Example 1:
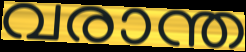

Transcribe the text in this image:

വരാന്ത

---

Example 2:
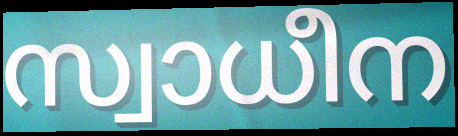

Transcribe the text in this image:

സ്വാധീന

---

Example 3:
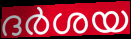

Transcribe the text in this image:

ദർശയ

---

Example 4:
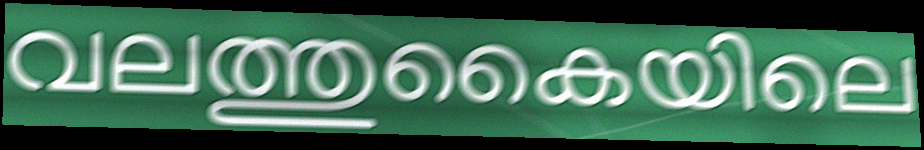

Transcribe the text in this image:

വലത്തുകൈയിലെ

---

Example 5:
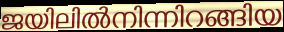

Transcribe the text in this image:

ജയിലിൽനിന്നിറങ്ങിയ